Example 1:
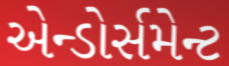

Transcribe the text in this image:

એન્ડોર્સમેન્ટ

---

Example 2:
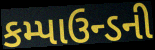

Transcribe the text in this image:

કમ્પાઉન્ડની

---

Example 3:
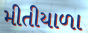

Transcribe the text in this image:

મીતીયાળા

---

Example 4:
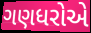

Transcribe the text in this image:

ગણધરોએ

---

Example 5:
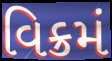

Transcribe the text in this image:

વિક્રમં